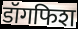
डॉगफिश